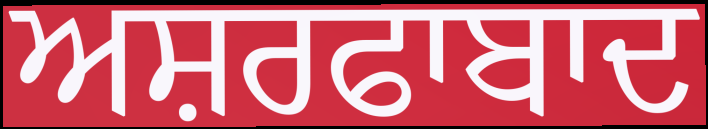
ਅਸ਼ਰਫਾਬਾਦ